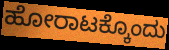
ಹೋರಾಟಕ್ಕೊಂದು